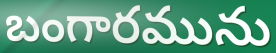
బంగారమును